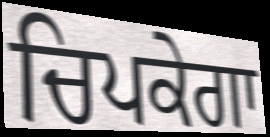
ਚਿਪਕੇਗਾ